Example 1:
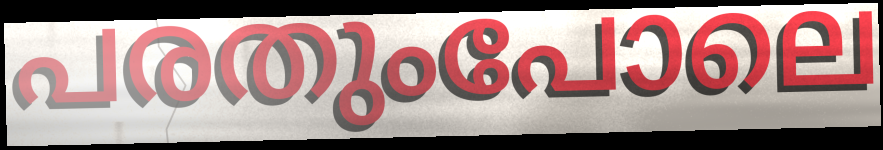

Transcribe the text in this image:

പരതുംപോലെ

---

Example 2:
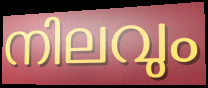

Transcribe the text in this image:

നിലവും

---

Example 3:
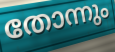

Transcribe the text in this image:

തോന്നും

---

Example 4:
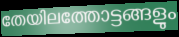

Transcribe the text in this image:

തേയിലത്തോട്ടങ്ങളും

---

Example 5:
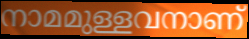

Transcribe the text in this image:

നാമമുള്ളവനാണ്